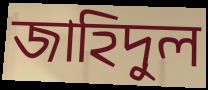
জাহিদুল